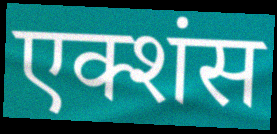
एक्शंस